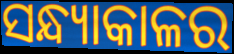
ସନ୍ଧ୍ୟାକାଳର